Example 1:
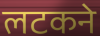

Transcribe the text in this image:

लटकने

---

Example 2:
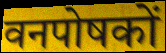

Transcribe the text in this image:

वनपोषकों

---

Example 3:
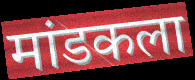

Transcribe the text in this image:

मांडकला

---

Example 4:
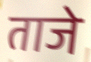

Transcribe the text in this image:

ताजे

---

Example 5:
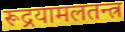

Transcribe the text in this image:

रूद्रयामलतन्त्र